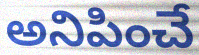
అనిపించే